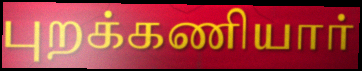
புறக்கணியார்